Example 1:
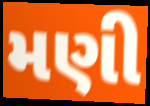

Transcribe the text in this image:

મણી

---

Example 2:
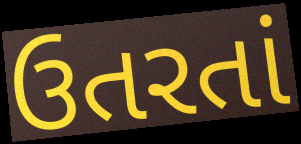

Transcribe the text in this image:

ઉતરતાં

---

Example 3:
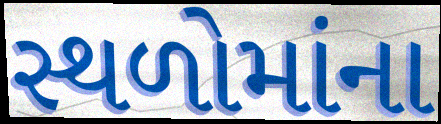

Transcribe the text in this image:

સ્થળોમાંના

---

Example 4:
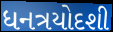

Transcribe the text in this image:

ધનત્રયોદશી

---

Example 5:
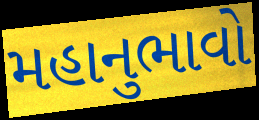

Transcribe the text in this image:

મહાનુભાવો